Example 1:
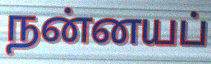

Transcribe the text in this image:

நன்னயப்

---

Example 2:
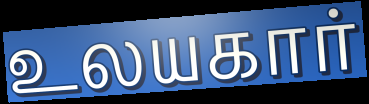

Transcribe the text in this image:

உலயகார்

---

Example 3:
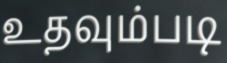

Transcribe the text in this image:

உதவும்படி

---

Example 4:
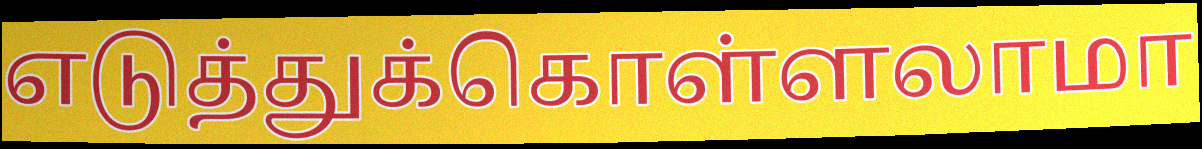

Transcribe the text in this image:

எடுத்துக்கொள்ளலாமா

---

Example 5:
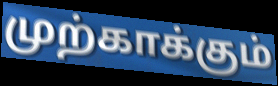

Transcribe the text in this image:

முற்காக்கும்